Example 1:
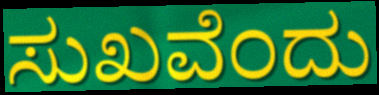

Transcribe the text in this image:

ಸುಖವೆಂದು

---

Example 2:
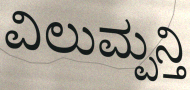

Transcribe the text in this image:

ವಿಲುಮ್ಪನ್ತಿ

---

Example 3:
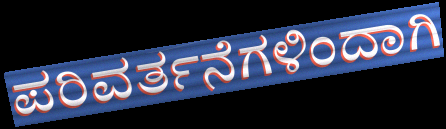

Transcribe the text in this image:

ಪರಿವರ್ತನೆಗಳಿಂದಾಗಿ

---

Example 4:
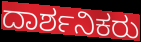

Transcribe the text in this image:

ದಾರ್ಶನಿಕರು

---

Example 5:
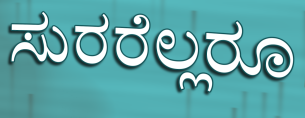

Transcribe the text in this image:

ಸುರರೆಲ್ಲರೂ